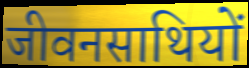
जीवनसाथियों